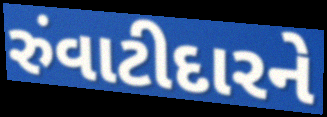
રુંવાટીદારને